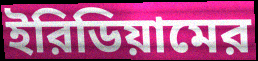
ইরিডিয়ামের